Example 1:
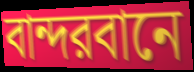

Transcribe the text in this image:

বান্দরবানে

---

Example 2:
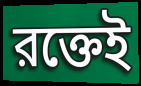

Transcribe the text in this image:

রক্তেই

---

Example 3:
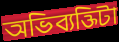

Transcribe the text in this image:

অভিব্যক্তিটা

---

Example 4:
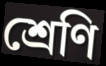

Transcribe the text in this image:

শ্রেণি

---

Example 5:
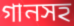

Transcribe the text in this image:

গানসহ